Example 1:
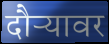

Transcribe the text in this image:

दौऱ्यावर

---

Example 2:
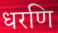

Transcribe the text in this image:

धरणि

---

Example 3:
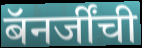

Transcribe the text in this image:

बॅनर्जींची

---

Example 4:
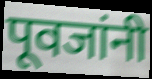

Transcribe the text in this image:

पूवजांनी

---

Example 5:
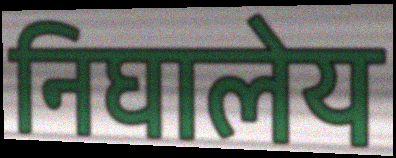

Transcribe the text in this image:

निघालेय